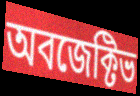
অবজেক্টিভ